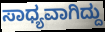
ಸಾಧ್ಯವಾಗಿದ್ದು